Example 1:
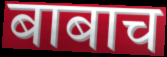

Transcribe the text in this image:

बाबाच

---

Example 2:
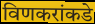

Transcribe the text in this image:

विणकरांकडे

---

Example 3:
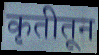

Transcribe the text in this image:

कृतीतून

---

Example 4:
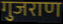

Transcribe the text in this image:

गुजराण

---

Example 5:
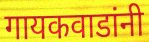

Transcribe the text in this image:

गायकवाडांनी